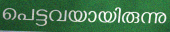
പെട്ടവയായിരുന്നു